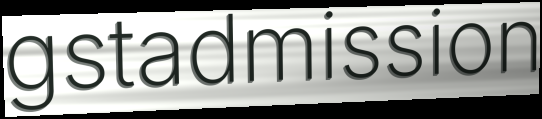
gstadmission